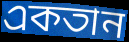
একতান